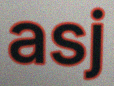
asj